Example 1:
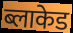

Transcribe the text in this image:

ब्लाकेड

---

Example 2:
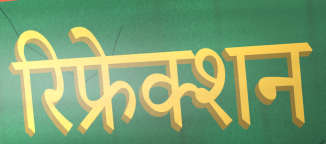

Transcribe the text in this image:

रिफ्रेक्शन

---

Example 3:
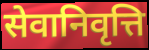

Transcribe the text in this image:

सेवानिवृत्ति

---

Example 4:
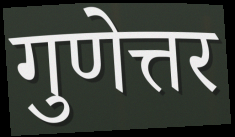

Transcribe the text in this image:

गुणेत्तर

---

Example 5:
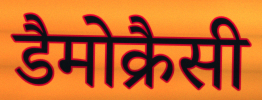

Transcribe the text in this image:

डैमोक्रैसी